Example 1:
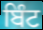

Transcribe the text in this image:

ਬਿੰਟ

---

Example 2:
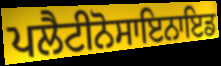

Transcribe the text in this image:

ਪਲੈਟੀਨੋਸਾਇਨਾਇਡ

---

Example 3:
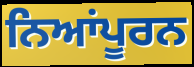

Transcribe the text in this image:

ਨਿਆਂਪੂਰਨ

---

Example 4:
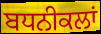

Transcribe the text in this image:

ਬਧਨੀਕਲਾਂ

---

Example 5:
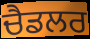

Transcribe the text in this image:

ਚੈਡਲਰ